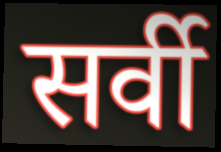
सर्वी